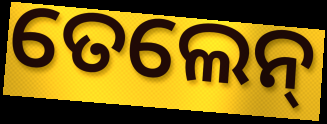
ତେଲେନ୍